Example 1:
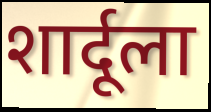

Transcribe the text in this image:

शार्दूला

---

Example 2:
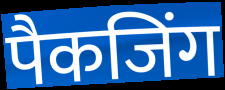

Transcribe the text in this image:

पैकजिंग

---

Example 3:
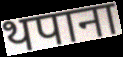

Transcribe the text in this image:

थपाना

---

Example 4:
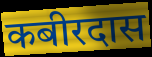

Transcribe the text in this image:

कबीरदास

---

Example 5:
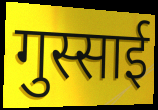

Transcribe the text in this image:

गुस्साई